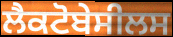
ਲੈਕਟੋਬੇਸੀਲਸ